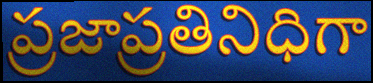
ప్రజాప్రతినిధిగా